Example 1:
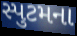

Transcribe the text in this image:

સ્પુટમના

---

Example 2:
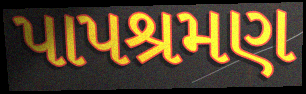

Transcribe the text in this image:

પાપશ્રમણ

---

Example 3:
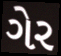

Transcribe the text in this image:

ગેર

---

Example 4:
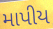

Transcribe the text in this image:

માપીય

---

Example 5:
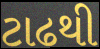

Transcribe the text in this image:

ટાઢથી